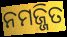
ନମଜ୍ଜିତ